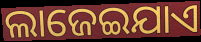
ଲାଜେଇଯାଏ